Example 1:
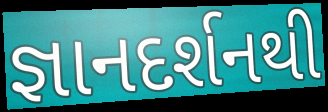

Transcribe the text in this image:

જ્ઞાનદર્શનથી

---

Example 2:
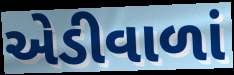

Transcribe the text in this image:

એડીવાળાં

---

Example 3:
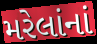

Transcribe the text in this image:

મરેલાંનાં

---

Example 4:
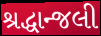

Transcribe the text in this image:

શ્રદ્ધાન્જલી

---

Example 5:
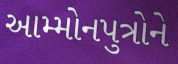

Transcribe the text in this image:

આમ્મોનપુત્રોને